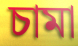
চামা